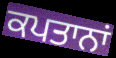
ਕਪਤਾਨਾਂ